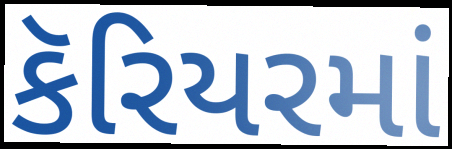
કૅરિયરમાં